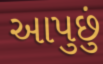
આપુછું